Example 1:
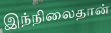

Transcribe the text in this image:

இந்நிலைதான்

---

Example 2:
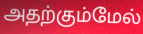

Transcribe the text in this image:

அதற்கும்மேல்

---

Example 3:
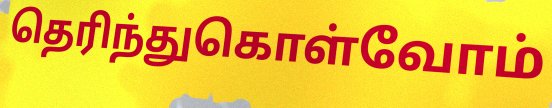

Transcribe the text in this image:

தெரிந்துகொள்வோம்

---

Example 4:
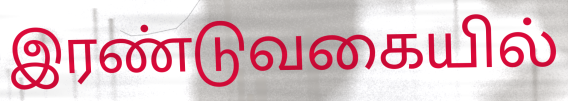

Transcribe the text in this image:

இரண்டுவகையில்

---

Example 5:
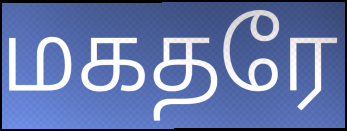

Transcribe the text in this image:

மகதரே